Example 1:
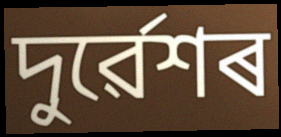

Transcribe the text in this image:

দুৰ্ৱেশৰ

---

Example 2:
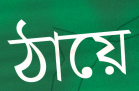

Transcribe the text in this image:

ঠায়ে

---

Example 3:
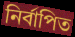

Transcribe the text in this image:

নিৰ্বাপিত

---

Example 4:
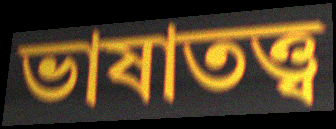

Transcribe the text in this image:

ভাষাতত্ত্ব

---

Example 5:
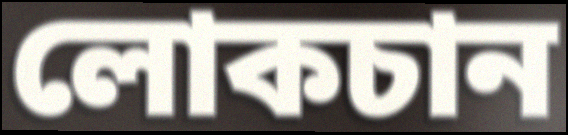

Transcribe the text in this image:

লোকচান